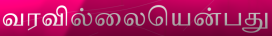
வரவில்லையென்பது